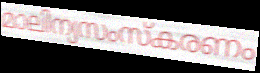
മാലിന്യസംസ്കരണം